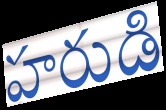
హరుడి